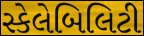
સ્કેલેબિલિટી